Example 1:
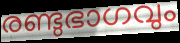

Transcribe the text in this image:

രണ്ടുഭാഗവും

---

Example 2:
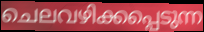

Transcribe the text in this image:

ചെലവഴിക്കപ്പെടുന്ന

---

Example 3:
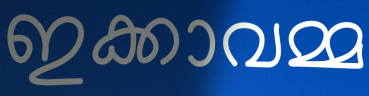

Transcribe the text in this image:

ഇക്കാവമ്മ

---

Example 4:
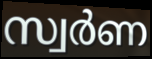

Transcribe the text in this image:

സ്വർണ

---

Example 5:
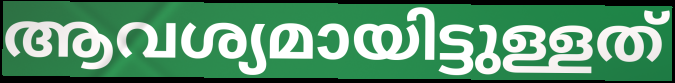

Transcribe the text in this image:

ആവശ്യമായിട്ടുള്ളത്